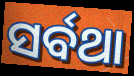
ସର୍ବଥା